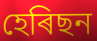
হেৰিছন